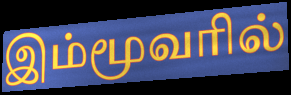
இம்மூவரில்